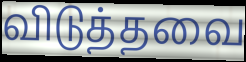
விடுத்தவை